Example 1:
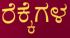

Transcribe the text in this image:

ರೆಕ್ಕೆಗಳ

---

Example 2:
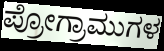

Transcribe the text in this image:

ಪ್ರೋಗ್ರಾಮುಗಳ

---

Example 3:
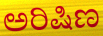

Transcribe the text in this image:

ಅರಿಷಿಣ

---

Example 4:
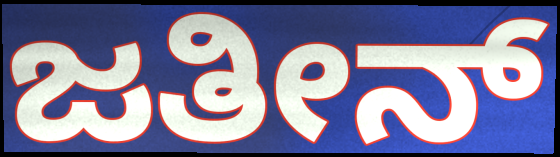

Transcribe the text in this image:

ಜತೀನ್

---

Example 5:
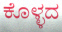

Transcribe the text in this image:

ಕೊಳ್ಳದ